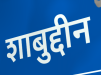
शाबुद्दीन